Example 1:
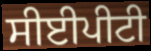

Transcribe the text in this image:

ਸੀਈਪੀਟੀ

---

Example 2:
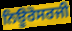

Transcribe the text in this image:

ਨਿਊਰੋਸਰਜੀ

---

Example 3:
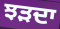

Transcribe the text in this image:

ਝੜਦਾ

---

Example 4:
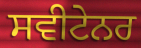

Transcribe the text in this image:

ਸਵੀਟੇਨਰ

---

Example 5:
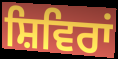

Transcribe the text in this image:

ਸ਼ਿਵਿਰਾਂ